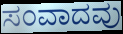
ಸಂವಾದವು